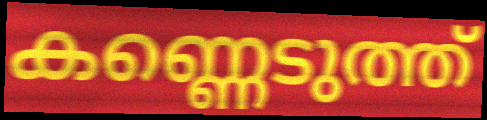
കണ്ണെടുത്ത്